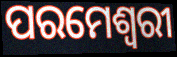
ପରମେଶ୍ୱରୀ